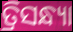
ତ୍ରିସନ୍ଧ୍ୟା